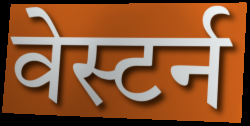
वेस्‍टर्न